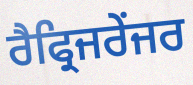
ਰੈਫ੍ਰਿਜਰੇਂਜਰ